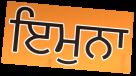
ਇਮੁਨਾ